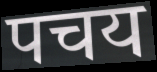
पचय